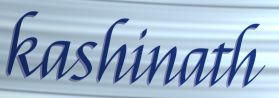
kashinath